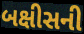
બક્ષીસની